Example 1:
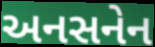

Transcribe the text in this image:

અનસનેન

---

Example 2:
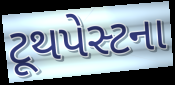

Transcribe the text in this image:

ટૂથપેસ્ટના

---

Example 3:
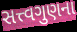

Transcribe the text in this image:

સત્ત્વગુણના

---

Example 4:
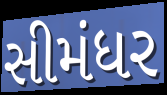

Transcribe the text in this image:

સીમંધર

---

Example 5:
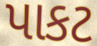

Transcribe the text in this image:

પાકટ